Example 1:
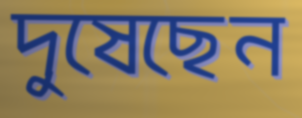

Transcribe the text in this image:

দুষেছেন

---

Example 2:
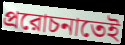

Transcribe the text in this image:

প্ররোচনাতেই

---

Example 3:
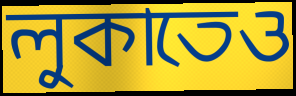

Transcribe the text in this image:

লুকাতেও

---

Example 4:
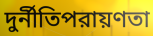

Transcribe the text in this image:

দুর্নীতিপরায়ণতা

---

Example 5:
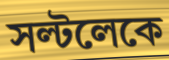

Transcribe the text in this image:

সল্টলেকে